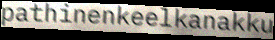
pathinenkeelkanakku